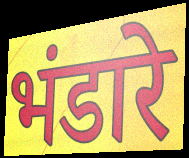
भंडारे